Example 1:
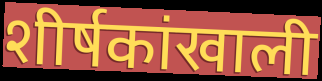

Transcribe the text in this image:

शीर्षकांखाली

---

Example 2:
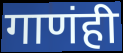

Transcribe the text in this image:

गाणंही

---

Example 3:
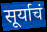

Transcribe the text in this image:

सूर्याचं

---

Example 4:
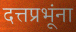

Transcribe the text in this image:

दत्तप्रभूंना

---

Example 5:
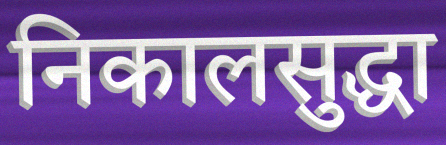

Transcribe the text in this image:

निकालसुद्धा